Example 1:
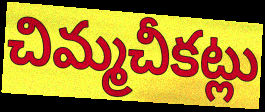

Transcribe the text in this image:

చిమ్మచీకట్లు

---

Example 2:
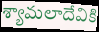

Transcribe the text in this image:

శ్యామలాదేవికి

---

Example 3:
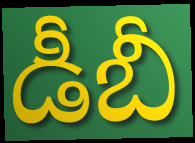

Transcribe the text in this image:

డీబీ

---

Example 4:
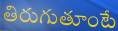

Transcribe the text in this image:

తిరుగుతూంటే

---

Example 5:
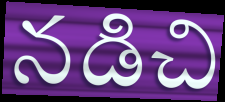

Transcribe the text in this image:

నడిచి